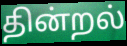
தின்றல்